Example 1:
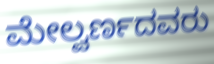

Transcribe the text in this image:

ಮೇಲ್ವರ್ಣದವರು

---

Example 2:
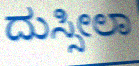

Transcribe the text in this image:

ದುಸ್ಸೀಲಾ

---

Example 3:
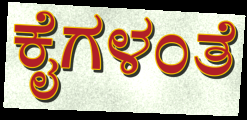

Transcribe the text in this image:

ಕೈಗಳಂತೆ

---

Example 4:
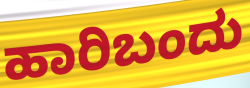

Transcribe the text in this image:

ಹಾರಿಬಂದು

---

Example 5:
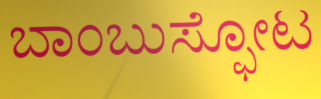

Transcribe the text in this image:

ಬಾಂಬುಸ್ಫೋಟ